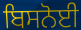
ਬਿਸਨੋਈ